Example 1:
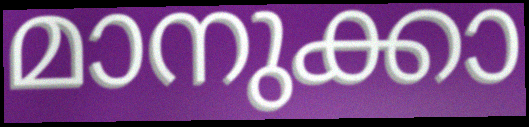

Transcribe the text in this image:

മാനുക്കാ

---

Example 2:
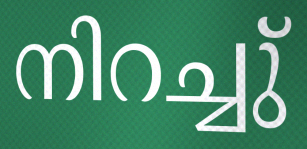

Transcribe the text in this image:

നിറച്ചു്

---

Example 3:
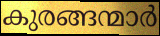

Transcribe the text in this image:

കുരങ്ങന്മാർ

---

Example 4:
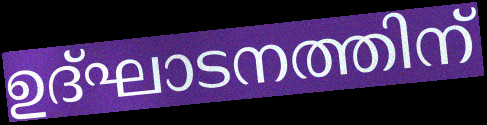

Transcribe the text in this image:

ഉദ്ഘാടനത്തിന്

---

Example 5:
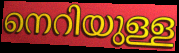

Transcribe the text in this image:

നെറിയുള്ള